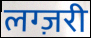
लग्ज़री